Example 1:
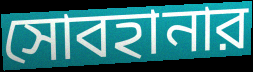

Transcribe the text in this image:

সোবহানার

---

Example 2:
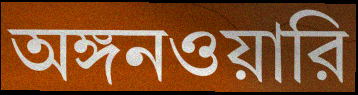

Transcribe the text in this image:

অঙ্গনওয়ারি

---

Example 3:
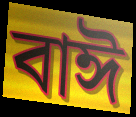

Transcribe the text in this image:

বাঈ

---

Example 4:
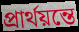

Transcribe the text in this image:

প্রার্থয়ন্তে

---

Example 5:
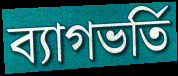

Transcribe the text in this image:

ব্যাগভর্তি